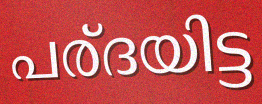
പര്ദയിട്ട